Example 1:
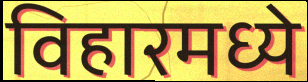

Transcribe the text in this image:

विहारमध्ये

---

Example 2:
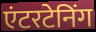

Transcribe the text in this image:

एंटरटेनिंग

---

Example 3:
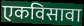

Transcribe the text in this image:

एकविसावा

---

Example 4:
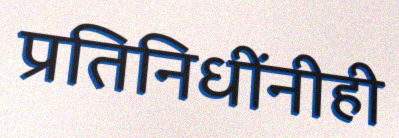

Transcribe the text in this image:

प्रतिनिधींनीही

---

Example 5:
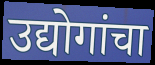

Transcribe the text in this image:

उद्योगांचा